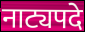
नाट्यपदे